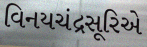
વિનયચંદ્રસૂરિએ